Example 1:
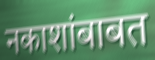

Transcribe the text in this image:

नकाशांबाबत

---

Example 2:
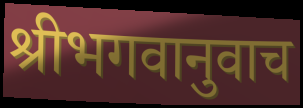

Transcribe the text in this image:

श्रीभगवानुवाच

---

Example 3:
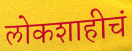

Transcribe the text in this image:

लोकशाहीचं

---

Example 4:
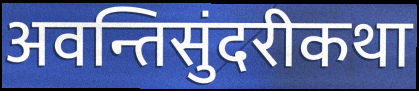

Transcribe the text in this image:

अवन्तिसुंदरीकथा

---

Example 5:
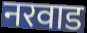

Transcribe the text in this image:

नरवाड